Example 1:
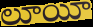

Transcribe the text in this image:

లూయీ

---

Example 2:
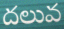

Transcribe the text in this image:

దలువ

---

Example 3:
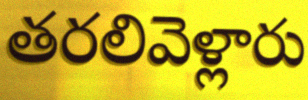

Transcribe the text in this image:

తరలివెళ్లారు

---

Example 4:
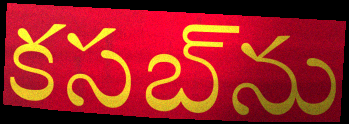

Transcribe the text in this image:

కసబ్‌ను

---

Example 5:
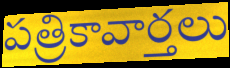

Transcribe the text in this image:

పత్రికావార్తలు